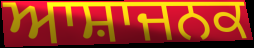
ਆਸ਼ਾਜਨਕ